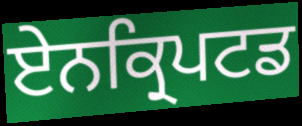
ਏਨਕ੍ਰਿਪਟਡ